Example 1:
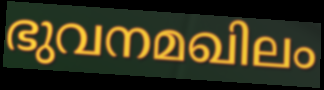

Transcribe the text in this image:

ഭുവനമഖിലം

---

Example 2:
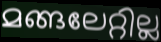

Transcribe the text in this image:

മങ്ങലേറ്റില്ല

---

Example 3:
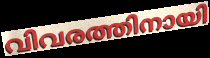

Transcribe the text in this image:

വിവരത്തിനായി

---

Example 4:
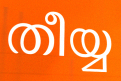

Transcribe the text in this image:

തീയ്യ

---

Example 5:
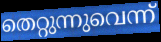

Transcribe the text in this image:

തെറ്റുന്നുവെന്ന്